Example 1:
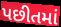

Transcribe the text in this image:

પછીતમાં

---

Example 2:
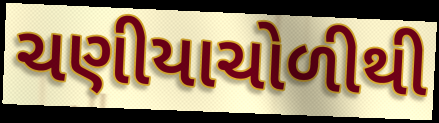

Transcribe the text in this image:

ચણીયાચોળીથી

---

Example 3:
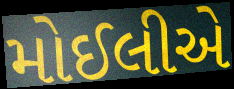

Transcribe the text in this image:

મોઈલીએ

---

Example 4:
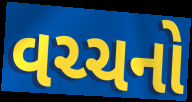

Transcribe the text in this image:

વચ્ચનો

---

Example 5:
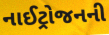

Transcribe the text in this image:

નાઈટ્રોજનની